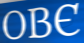
OBE